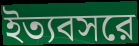
ইত্যবসরে